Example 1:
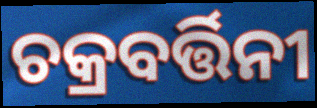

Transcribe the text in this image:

ଚକ୍ରବର୍ତ୍ତିନୀ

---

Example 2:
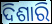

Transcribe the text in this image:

ଦିଶାରି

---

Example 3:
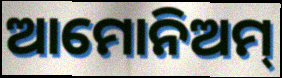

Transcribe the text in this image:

ଆମୋନିଅମ୍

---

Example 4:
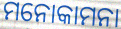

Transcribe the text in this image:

ମନୋକାମନା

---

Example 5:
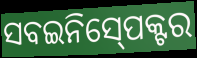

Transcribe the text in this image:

ସବଇନିସ୍‍ପେକ୍ଟର